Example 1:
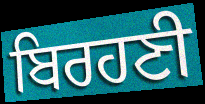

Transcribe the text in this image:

ਬਿਰਹਣੀ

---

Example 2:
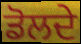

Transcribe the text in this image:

ਡੋਲਦੇ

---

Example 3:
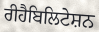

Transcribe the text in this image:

ਰੀਹੈਬਿਲਿਟੇਸ਼ਨ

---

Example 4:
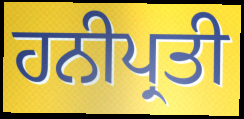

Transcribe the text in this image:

ਹਨੀਪ੍ਰਤੀ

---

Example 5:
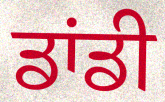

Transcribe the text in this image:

ਡਾਂਡੀ